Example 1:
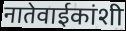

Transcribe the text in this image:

नातेवाईकांशी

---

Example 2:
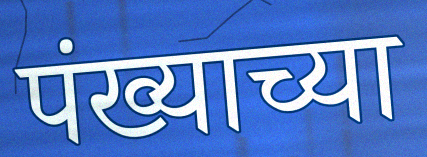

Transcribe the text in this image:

पंख्याच्या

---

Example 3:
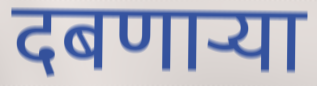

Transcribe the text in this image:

दबणाऱ्या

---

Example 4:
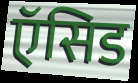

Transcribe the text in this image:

ऍसिड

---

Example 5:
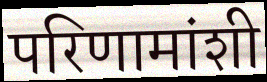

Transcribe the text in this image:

परिणामांशी